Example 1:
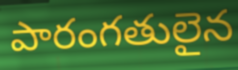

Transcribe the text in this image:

పారంగతులైన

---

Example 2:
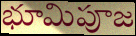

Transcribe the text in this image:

భూమిపూజ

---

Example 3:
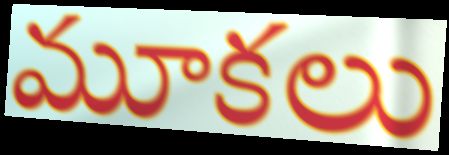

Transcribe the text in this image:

మూకలు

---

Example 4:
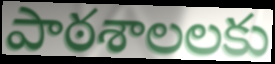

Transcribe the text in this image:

పాఠశాలలకు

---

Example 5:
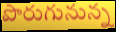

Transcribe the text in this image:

పొరుగునున్న